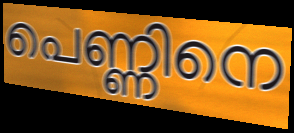
പെണ്ണിനെ